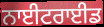
ਨਾਈਟਰਾਈਡ